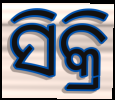
ସିକ୍ରି